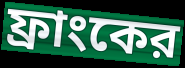
ফ্রাংকের